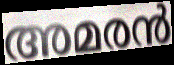
അമരൻ